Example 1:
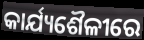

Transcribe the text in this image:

କାର୍ଯ୍ୟଶୈଳୀରେ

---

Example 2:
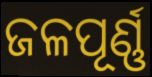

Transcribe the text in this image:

ଜଳପୂର୍ଣ୍ଣ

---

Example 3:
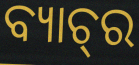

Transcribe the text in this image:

ବ୍ୟାଚ୍‌ର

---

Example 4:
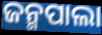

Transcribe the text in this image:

ଜନ୍ମପାଲା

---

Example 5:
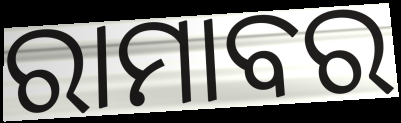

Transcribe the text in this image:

ରାମାବର